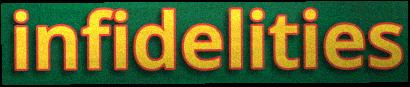
infidelities